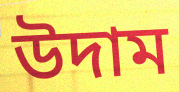
উদাম